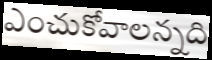
ఎంచుకోవాలన్నది